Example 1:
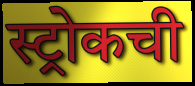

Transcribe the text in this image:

स्ट्रोकची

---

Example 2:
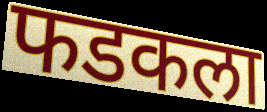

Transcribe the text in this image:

फडकला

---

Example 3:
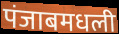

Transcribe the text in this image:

पंजाबमधली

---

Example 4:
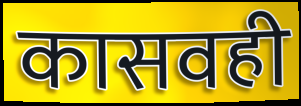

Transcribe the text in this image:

कासवही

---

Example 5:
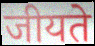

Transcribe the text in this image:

जीयते